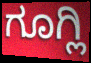
ಗೂಗ್ಲಿ